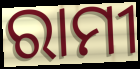
ରାମୀ